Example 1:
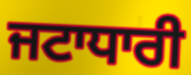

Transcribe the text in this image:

ਜਟਾਧਾਰੀ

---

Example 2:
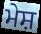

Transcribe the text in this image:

ਮੇਸ਼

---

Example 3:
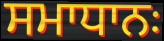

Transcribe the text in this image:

ਸਮਾਧਾਨਃ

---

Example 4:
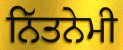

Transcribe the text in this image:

ਨਿੱਤਨੇਮੀ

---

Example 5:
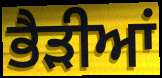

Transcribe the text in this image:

ਭੈੜੀਆਂ